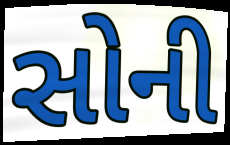
સોની